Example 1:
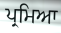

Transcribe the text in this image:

ਪ੍ਰਮਿਆ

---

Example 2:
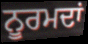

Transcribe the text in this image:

ਨੂਰਮਦਾਂ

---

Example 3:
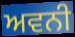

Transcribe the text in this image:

ਅਵਨੀ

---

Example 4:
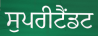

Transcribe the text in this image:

ਸੁਪਰੀਟੈਂਡਟ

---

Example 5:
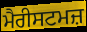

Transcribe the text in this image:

ਮੈਰੀਸਟਮਜ਼